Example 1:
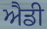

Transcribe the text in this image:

ਐਡੀ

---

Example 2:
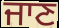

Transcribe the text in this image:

ਜਾਣ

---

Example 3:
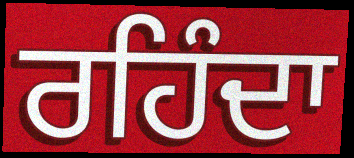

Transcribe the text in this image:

ਰਹਿੰਦਾ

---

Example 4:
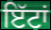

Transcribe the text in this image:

ਇੱਟਾਂ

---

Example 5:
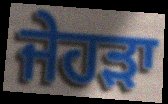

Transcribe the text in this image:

ਜੇਹੜਾ